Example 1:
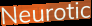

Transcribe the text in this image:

Neurotic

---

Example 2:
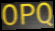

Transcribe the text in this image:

OPQ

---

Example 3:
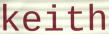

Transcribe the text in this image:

keith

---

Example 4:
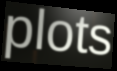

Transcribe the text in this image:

plots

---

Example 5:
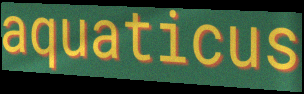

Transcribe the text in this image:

aquaticus